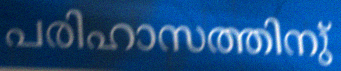
പരിഹാസത്തിനു്